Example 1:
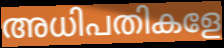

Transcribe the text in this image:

അധിപതികളേ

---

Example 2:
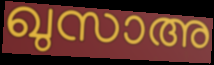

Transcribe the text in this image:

ഖുസാഅ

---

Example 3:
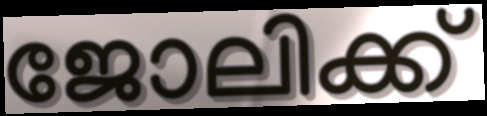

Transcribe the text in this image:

ജോലിക്ക്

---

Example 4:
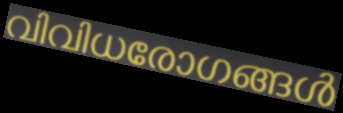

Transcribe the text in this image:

വിവിധരോഗങ്ങൾ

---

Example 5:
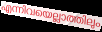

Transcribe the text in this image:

എന്നിവയെല്ലാത്തിലും